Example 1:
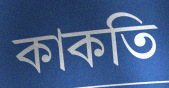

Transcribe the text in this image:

কাকতি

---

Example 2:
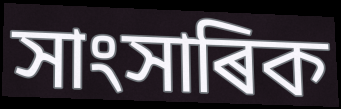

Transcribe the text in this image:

সাংসাৰিক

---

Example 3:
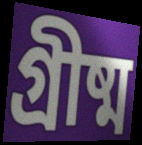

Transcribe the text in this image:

গ্ৰীষ্ম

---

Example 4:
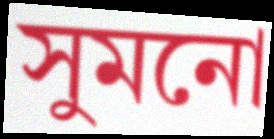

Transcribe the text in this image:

সুমনো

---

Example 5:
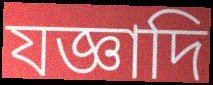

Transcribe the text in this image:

যজ্ঞাদি